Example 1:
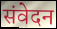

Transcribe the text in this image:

संवेदन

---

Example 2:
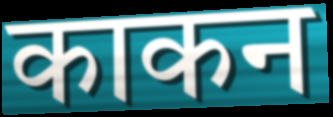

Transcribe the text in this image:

काकन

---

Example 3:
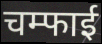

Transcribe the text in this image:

चम्फाई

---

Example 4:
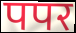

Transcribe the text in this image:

पपर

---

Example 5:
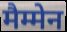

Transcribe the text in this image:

मैम्मेन